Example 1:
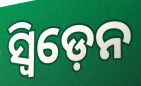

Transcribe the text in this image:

ସ୍ବିଡ଼େନ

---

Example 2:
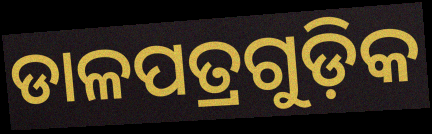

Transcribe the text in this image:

ଡାଳପତ୍ରଗୁଡ଼ିକ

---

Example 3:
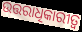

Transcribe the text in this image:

ଉତ୍ତରାଧିକାରୀତ୍ଵ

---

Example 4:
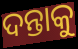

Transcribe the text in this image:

ଦନ୍ତାକୁ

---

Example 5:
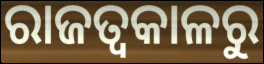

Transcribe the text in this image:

ରାଜତ୍ଵକାଳରୁ